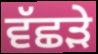
ਵੱਛੜੇ